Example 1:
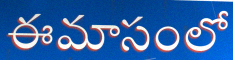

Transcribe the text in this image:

ఈమాసంలో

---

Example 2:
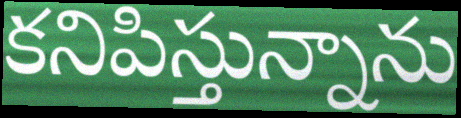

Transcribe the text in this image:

కనిపిస్తున్నాను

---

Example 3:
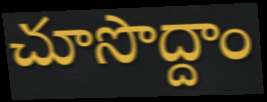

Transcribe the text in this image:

చూసొద్దాం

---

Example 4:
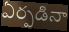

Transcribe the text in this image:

ఏర్పడినా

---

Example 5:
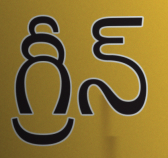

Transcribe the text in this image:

గ్రీన్